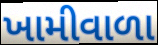
ખામીવાળા